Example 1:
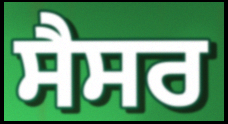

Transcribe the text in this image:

ਸੈਸਰ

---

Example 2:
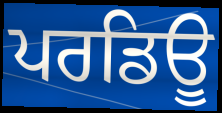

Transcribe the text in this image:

ਪਰਡਿਊ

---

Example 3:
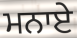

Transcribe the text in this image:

ਮਨਾਏ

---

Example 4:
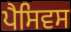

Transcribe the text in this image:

ਪੈਸਿਵਸ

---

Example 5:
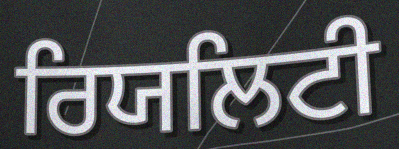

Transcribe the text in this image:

ਰਿਯਲਿਟੀ